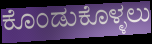
ಕೊಂಡುಕೊಳ್ಳಲು